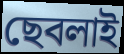
ছেবলাই